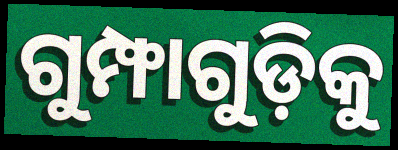
ଗୁମ୍ଫାଗୁଡ଼ିକୁ